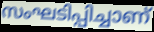
സംഘടിപ്പിച്ചാണ്